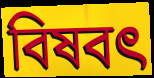
বিষবৎ